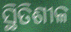
ସ୍ଥିତିଶୀଳ